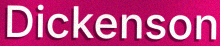
Dickenson